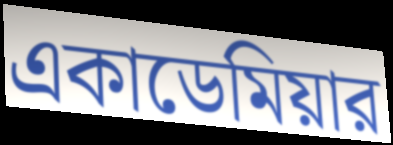
একাডেমিয়ার